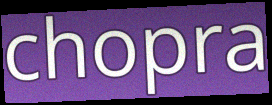
chopra